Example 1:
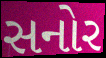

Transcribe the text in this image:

સનોર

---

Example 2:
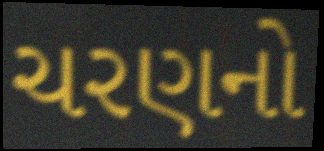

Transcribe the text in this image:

ચરણનો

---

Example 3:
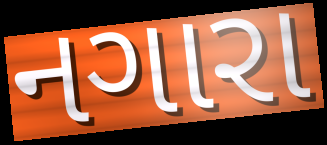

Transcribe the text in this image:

નગારા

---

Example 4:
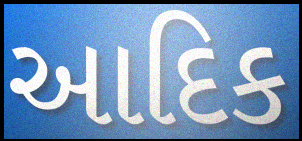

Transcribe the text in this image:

આદિક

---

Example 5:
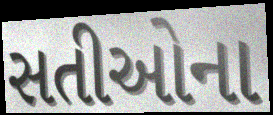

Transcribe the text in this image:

સતીઓના